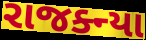
રાજક્ન્યા